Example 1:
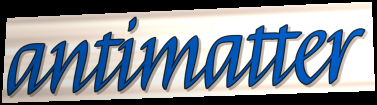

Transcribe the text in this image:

antimatter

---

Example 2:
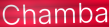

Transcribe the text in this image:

Chamba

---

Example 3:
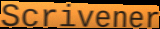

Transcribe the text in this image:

Scrivener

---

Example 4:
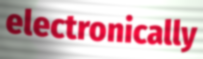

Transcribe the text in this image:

electronically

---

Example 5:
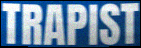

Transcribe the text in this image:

TRAPIST